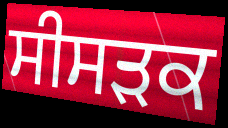
ਸੀਸੜਕ